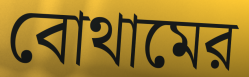
বোথামের